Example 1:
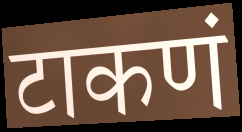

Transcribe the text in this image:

टाकणं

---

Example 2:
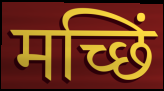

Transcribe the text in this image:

मच्छिं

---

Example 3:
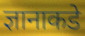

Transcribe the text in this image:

ज्ञानाकडे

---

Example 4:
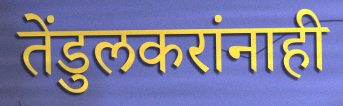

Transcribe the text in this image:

तेंडुलकरांनाही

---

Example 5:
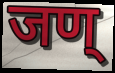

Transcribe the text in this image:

जण्